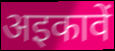
अइकावें